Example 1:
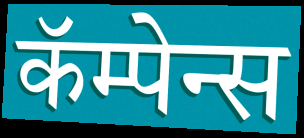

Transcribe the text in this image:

कॅम्पेन्स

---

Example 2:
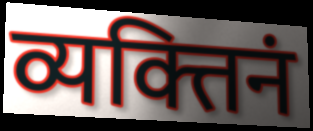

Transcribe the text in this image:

व्यक्तिनं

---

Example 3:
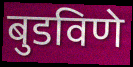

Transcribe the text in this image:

बुडविणे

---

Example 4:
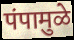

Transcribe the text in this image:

पंपामुळे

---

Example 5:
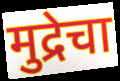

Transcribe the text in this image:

मुद्रेचा